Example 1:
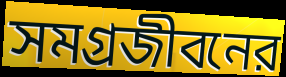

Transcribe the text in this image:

সমগ্রজীবনের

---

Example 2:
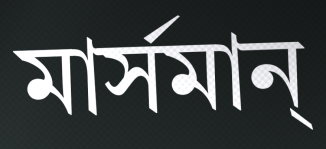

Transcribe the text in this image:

মার্সমান্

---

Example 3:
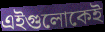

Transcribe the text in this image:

এইগুলোকেই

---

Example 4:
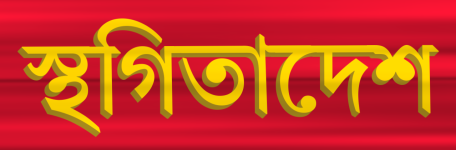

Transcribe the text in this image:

স্থগিতাদেশ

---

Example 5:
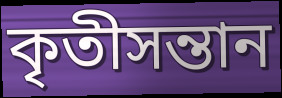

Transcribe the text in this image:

কৃতীসন্তান